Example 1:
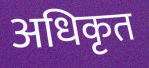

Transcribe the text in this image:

अधिकृत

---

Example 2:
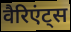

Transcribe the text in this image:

वैरिएंट्स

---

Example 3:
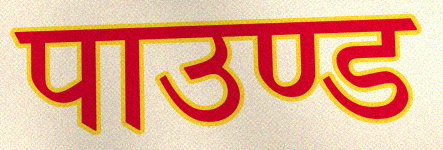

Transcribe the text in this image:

पाउण्‍ड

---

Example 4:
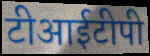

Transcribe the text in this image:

टीआईटीपी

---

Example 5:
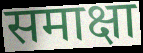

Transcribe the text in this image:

समाक्षा